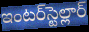
ఇంటర్‌స్టెల్లార్